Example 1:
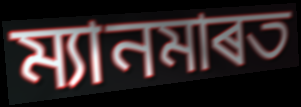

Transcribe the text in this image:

ম্যানমাৰত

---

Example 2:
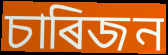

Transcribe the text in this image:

চাৰিজন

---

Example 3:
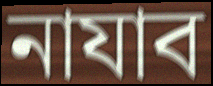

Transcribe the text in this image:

নাযাব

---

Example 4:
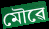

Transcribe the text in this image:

মৌৱে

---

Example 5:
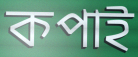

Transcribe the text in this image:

কপাই